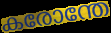
കരോന്തേ